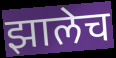
झालेच